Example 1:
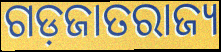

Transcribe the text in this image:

ଗଡ଼ଜାତରାଜ୍ୟ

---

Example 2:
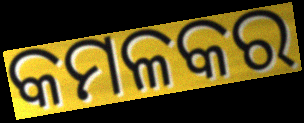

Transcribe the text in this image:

କମଳକର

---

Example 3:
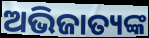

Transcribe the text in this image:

ଅଭିଜାତ୍ୟଙ୍କ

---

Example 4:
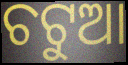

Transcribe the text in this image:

ଚଟୁଆ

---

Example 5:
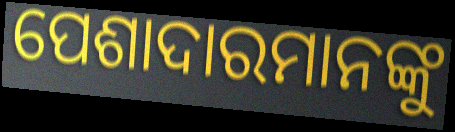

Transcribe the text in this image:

ପେଶାଦାରମାନଙ୍କୁ